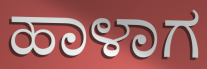
ಹಾಳಾಗ